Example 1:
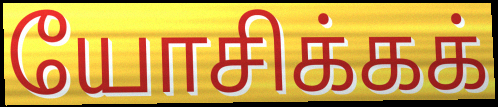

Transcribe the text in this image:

யோசிக்கக்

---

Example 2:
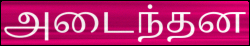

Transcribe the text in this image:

அடைந்தன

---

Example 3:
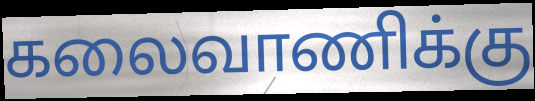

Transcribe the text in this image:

கலைவாணிக்கு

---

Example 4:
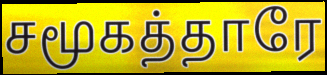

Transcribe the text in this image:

சமூகத்தாரே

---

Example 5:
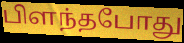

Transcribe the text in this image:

பிளந்தபோது